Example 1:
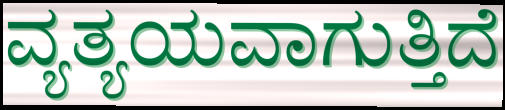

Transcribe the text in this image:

ವ್ಯತ್ಯಯವಾಗುತ್ತಿದೆ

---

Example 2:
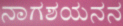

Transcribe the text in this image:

ನಾಗಶಯನನ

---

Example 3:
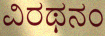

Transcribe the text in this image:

ವಿರಥನಂ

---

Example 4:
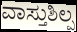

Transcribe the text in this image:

ವಾಸ್ತುಶಿಲ್ಪ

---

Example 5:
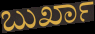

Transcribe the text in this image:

ಬುರ್ಖಾ